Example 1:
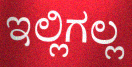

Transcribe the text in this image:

ಇಲ್ಲಿಗಲ್ಲ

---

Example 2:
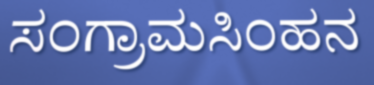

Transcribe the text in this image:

ಸಂಗ್ರಾಮಸಿಂಹನ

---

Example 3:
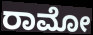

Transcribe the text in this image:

ರಾಮೋ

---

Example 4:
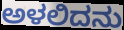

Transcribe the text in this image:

ಅಳಲಿದನು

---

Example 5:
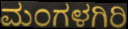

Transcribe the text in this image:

ಮಂಗಳಗಿರಿ